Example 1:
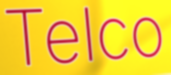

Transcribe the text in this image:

Telco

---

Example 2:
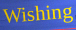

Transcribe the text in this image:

Wishing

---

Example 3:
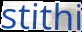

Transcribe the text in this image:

stithi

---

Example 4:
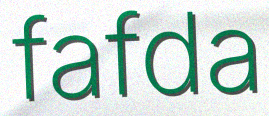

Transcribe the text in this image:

fafda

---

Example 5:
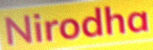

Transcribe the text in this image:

Nirodha